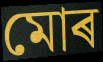
মোৰ